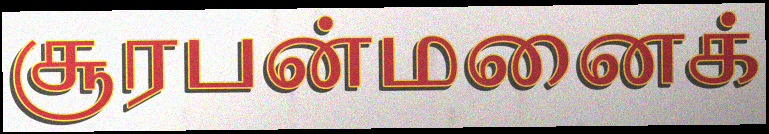
சூரபன்மனைக்